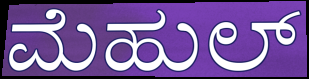
ಮೆಹುಲ್